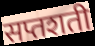
सप्तशती